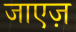
जाएज़